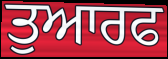
ਤੁਆਰਫ